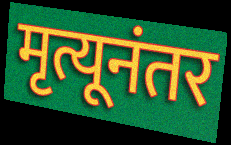
मृत्यूनंतर